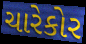
ચારેકોર